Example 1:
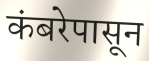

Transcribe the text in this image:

कंबरेपासून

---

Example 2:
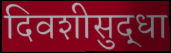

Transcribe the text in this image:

दिवशीसुद्धा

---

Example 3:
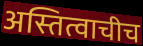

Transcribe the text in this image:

अस्तित्वाचीच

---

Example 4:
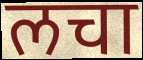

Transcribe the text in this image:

लचा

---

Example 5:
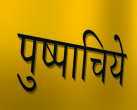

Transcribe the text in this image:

पुष्पाचिये